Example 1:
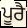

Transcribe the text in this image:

ਪੂਰੈ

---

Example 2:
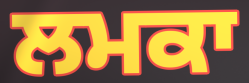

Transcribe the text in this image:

ਲਮਕਾ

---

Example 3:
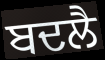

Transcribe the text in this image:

ਬਦਲੈ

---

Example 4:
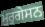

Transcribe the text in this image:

ਮੁਰੁਗੇਸਨ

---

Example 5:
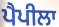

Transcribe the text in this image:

ਪੈਪੀਲਾ